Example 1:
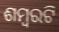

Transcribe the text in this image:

ଶମ୍ବରଟି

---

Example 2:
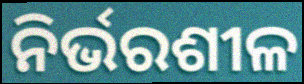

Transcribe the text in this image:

ନିର୍ଭରଶୀଳ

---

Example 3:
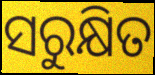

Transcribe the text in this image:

ସରୁକ୍ଷିତ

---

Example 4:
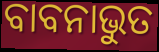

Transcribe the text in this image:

ବାବନାଭୁତ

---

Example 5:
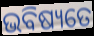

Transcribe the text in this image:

ଭବିଷ୍ୟତେ